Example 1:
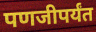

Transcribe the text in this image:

पणजीपर्यंत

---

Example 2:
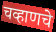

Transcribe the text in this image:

चव्हाणचे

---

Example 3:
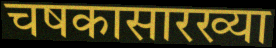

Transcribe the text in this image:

चषकासारख्या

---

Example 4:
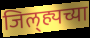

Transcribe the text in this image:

जिल्ह्यच्या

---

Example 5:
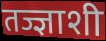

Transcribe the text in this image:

तज्ज्ञाशी